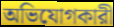
অভিযোগকারী